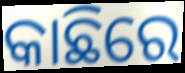
କାଛିରେ